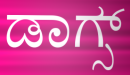
ಡಾಗ್ಸ್